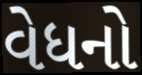
વેધનો